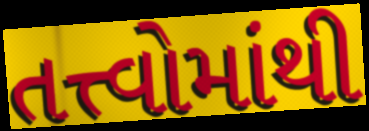
તત્ત્વોમાંથી